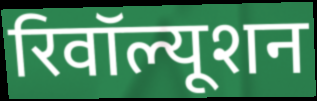
रिवॉल्यूशन